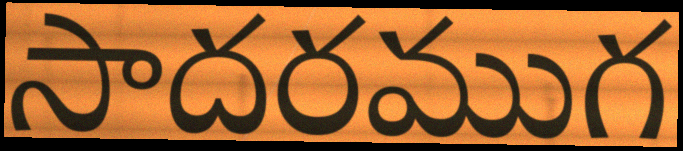
సాదరముగ